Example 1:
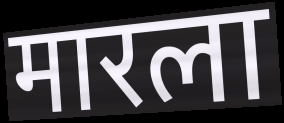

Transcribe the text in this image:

मारला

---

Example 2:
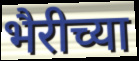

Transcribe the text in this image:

भैरीच्या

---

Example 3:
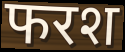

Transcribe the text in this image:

फरश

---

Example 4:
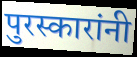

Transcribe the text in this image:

पुरस्कारांनी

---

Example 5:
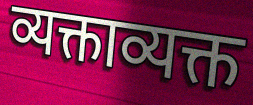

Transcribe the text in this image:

व्यक्ताव्यक्त